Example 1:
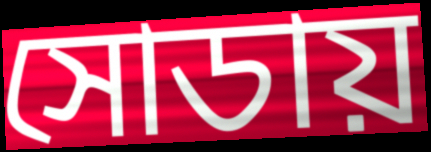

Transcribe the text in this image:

সোডায়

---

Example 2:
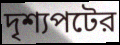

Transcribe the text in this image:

দৃশ্যপটের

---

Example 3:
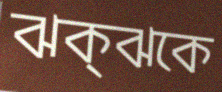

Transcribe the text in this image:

ঝক্‌ঝকে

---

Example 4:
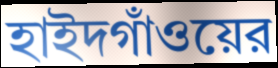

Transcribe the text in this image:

হাইদগাঁওয়ের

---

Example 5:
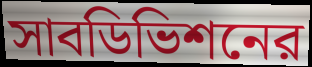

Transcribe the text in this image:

সাবডিভিশনের